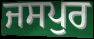
ਜਸਪੁਰ